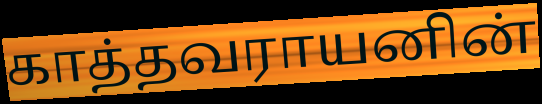
காத்தவராயனின்